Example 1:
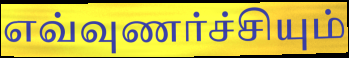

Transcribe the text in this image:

எவ்வுணர்ச்சியும்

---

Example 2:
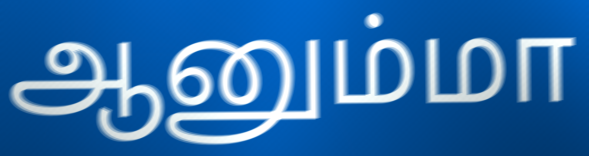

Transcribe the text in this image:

ஆனும்மா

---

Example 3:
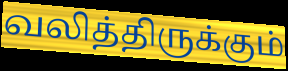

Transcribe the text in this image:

வலித்திருக்கும்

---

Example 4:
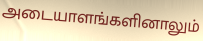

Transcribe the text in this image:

அடையாளங்களினாலும்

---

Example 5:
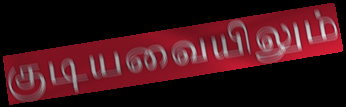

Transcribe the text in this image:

குடியவையிலும்